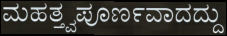
ಮಹತ್ತ್ವಪೂರ್ಣವಾದದ್ದು